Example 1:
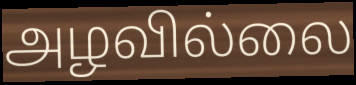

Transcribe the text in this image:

அழவில்லை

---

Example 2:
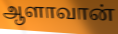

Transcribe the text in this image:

ஆளாவான்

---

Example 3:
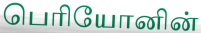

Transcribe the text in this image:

பெரியோனின்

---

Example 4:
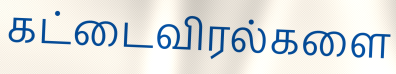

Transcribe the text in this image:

கட்டைவிரல்களை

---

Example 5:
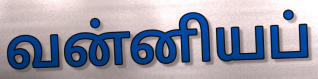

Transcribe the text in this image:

வன்னியப்